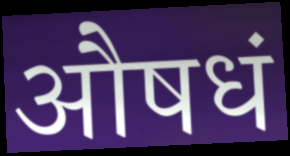
औषधं